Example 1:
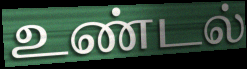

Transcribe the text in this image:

உண்டல்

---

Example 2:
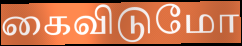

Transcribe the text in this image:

கைவிடுமோ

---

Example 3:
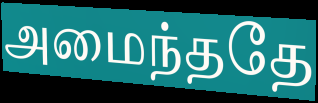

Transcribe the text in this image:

அமைந்ததே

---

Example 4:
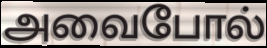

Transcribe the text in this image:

அவைபோல்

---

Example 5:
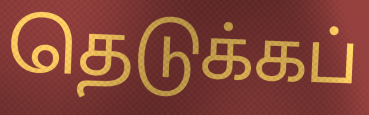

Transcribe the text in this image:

தெடுக்கப்